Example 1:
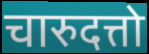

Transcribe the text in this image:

चारुदत्तो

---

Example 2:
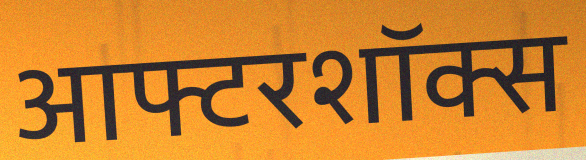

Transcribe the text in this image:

आफ्टरशॉक्स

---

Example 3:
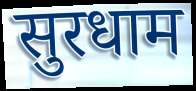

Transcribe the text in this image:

सुरधाम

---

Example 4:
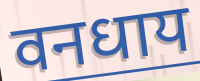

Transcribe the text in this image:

वनधाय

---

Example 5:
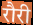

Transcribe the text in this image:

रौरी